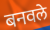
बनवले